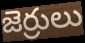
జెర్రులు